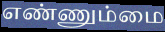
எண்ணும்மை